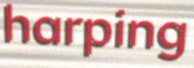
harping